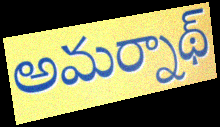
అమర్నాథ్